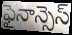
ఫైనాన్సెస్